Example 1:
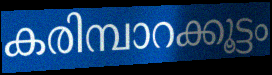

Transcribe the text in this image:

കരിമ്പാറക്കൂട്ടം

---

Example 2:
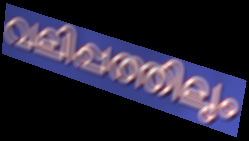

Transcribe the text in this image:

വലിപ്പത്തിലും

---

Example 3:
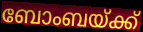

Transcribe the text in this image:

ബോംബയ്ക്ക്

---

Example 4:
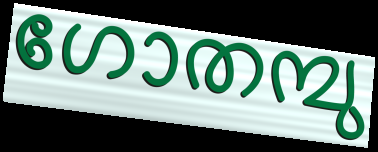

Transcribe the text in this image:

ഗോതമ്പു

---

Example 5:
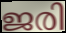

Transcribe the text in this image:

ജരി